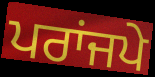
ਪਰਾਂਜਪੇ